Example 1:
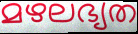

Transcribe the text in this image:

മഴലഭ്യത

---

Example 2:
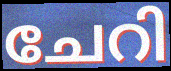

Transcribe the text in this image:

ചേറി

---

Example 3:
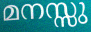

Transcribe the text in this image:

മനസ്സു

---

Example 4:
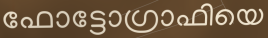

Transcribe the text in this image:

ഫോട്ടോഗ്രാഫിയെ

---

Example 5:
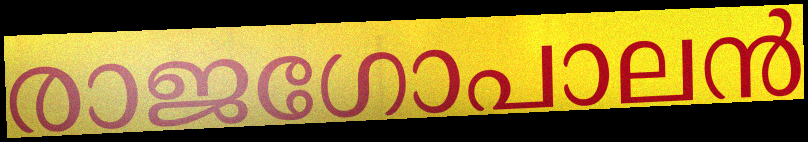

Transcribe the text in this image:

രാജഗോപാലൻ